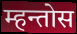
म्हन्तोस